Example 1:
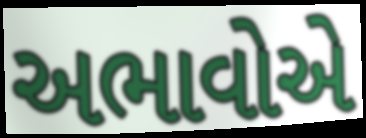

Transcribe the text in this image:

અભાવોએ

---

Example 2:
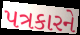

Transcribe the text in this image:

પત્રકારને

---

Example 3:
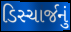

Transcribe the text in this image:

ડિસ્ચાર્જનું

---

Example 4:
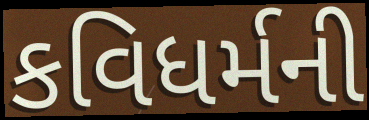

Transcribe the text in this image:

કવિધર્મની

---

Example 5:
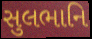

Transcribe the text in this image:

સુલભાનિ